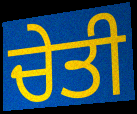
ਚੇਤੀ